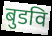
बुडवि